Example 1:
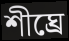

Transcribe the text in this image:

শীঘ্ৰে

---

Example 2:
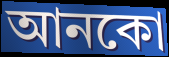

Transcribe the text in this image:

আনকো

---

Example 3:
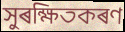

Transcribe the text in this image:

সুৰক্ষিতকৰণ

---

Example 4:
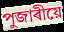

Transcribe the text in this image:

পুজাৰীয়ে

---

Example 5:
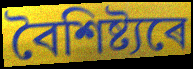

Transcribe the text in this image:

বৈশিষ্ট্যৰে